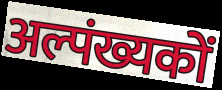
अल्पंख्यकों